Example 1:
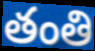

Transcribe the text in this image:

తంతి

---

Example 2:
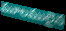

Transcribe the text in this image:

మూలములైన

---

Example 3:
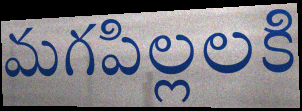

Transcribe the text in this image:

మగపిల్లలకి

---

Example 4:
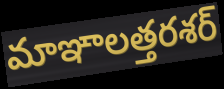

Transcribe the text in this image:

మాఞాలత్తరశర్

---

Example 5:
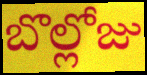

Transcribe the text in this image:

బొల్లోజు